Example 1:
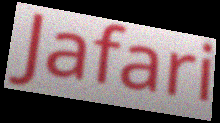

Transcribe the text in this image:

Jafari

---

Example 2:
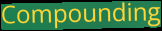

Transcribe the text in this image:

Compounding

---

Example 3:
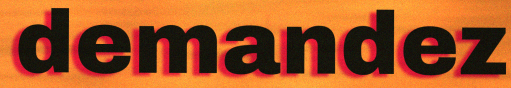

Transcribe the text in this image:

demandez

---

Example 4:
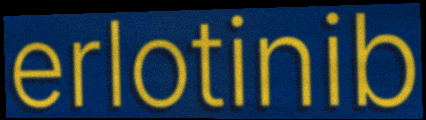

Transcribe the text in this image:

erlotinib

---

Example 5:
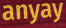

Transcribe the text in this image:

anyay